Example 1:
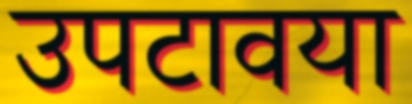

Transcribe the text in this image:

उपटावया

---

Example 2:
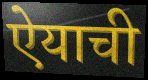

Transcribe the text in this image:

ऐयाची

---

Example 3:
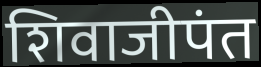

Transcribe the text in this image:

शिवाजीपंत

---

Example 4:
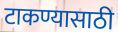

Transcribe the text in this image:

टाकण्यासाठी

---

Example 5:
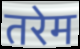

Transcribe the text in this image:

तरेम